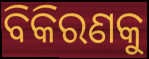
ବିକିରଣକୁ